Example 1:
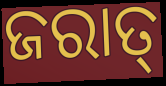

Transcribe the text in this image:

ଜରାତ୍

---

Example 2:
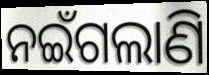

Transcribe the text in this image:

ନଇଁଗଲାଣି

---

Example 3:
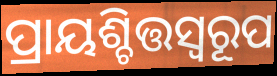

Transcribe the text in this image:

ପ୍ରାୟଶ୍ଚିତ୍ତସ୍ୱରୂପ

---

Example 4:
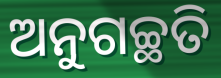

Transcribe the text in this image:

ଅନୁଗଚ୍ଛତି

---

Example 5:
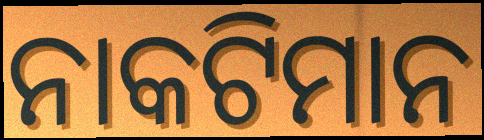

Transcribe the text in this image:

ନାକଟିମାନ